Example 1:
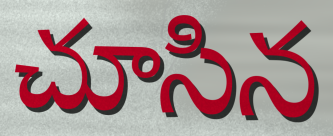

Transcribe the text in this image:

చూసిన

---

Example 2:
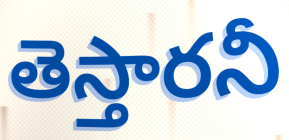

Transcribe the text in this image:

తెస్తారనీ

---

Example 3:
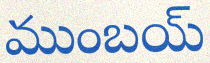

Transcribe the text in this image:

ముంబయ్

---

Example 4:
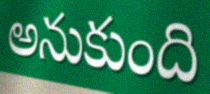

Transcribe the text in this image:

అనుకుంది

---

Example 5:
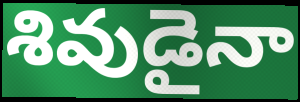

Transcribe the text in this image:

శివుడైనా